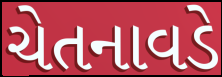
ચેતનાવડે